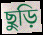
ছুড়ি